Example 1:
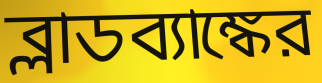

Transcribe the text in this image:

ব্লাডব্যাঙ্কের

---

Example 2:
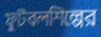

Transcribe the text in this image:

ফুটবলশিল্পের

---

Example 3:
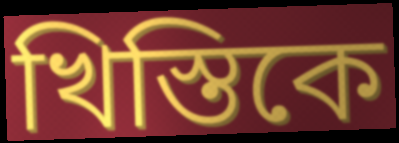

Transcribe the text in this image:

খিস্তিকে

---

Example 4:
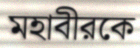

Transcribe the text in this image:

মহাবীরকে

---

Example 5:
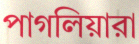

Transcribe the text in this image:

পাগলিয়ারা